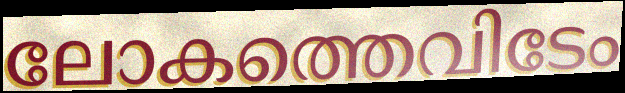
ലോകത്തെവിടേം